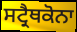
ਸਟ੍ਰੈਥਕੋਨਾ